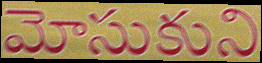
మోసుకుని